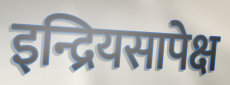
इन्द्रियसापेक्ष